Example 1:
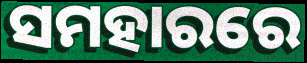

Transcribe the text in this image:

ସମହାରରେ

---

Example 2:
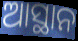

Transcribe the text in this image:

ଆସ୍ଥାନ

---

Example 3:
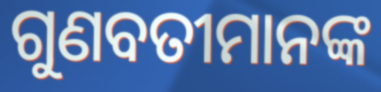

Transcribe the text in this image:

ଗୁଣବତୀମାନଙ୍କ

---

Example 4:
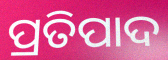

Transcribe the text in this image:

ପ୍ରତିପାଦ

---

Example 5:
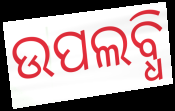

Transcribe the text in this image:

ଉପଲବ୍ଧି